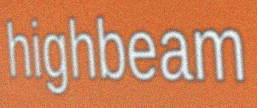
highbeam